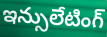
ఇన్సులేటింగ్